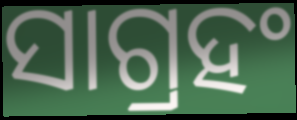
ସାଗ୍ରହଂ